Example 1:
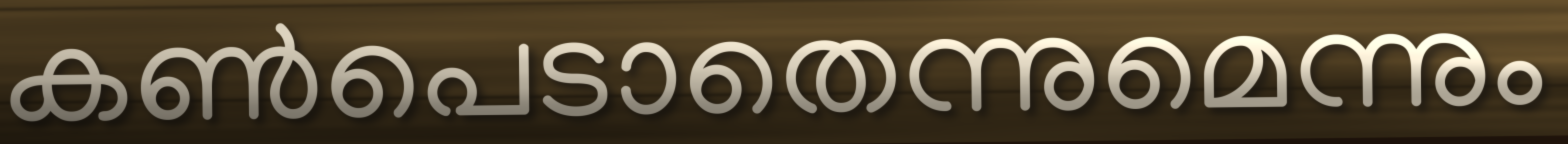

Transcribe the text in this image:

കൺപെടാതെന്നുമെന്നും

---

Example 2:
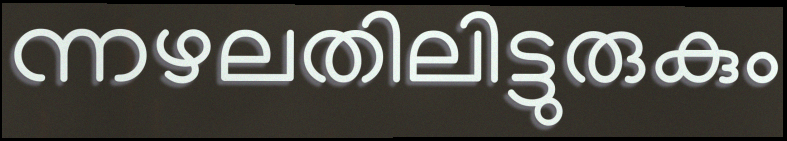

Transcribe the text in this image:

ന്നഴലതിലിട്ടുരുകും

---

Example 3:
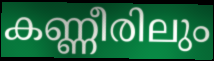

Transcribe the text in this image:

കണ്ണീരിലും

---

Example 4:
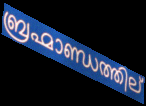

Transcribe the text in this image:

ബ്രഹ്മാണ്ഡത്തില്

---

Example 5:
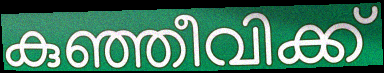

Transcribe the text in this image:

കുഞ്ഞീവിക്ക്